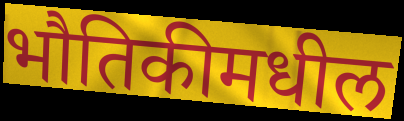
भौतिकीमधील